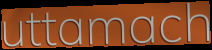
uttamach